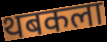
थबकला